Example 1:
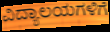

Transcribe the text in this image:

ವಿದ್ಯಾಲಯಗಳಿಗೆ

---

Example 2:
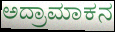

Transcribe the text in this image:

ಅದ್ರಾಮಾಕನ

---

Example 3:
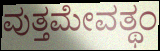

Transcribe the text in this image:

ವುತ್ತಮೇವತ್ಥಂ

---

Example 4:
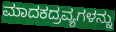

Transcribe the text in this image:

ಮಾದಕದ್ರವ್ಯಗಳನ್ನು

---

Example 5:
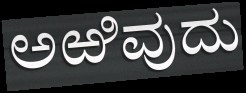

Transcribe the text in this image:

ಅಱಿವುದು